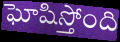
ఘోషిస్తోంది